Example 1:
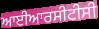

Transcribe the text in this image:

ਆਈਆਰਸੀਟੀਸੀ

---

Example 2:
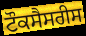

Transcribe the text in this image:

ਟੌਕਸੈਸਰੀਸ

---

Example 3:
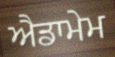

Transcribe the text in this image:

ਐਡਾਮੇਮ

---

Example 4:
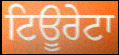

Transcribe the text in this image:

ਟਿਊਰੇਟਾ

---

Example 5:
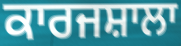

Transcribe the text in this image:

ਕਾਰਜਸ਼ਾਲਾ